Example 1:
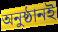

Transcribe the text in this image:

অনুষ্ঠানই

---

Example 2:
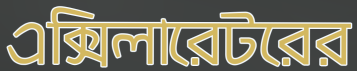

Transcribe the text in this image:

এক্সিলারেটরের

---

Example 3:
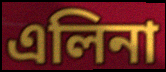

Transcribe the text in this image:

এলিনা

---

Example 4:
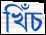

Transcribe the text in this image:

খিঁচ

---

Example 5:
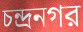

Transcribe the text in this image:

চন্দ্রনগর